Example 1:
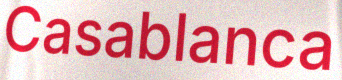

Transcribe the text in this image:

Casablanca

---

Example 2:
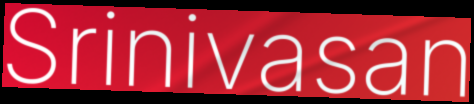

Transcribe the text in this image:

Srinivasan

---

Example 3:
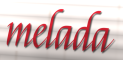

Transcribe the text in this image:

melada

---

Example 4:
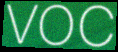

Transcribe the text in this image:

VOC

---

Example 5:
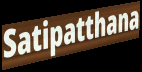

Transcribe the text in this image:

Satipatthana